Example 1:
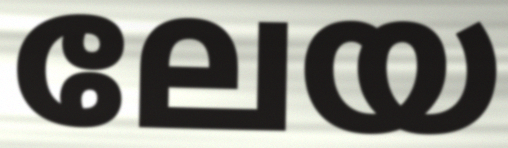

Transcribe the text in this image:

ലേയ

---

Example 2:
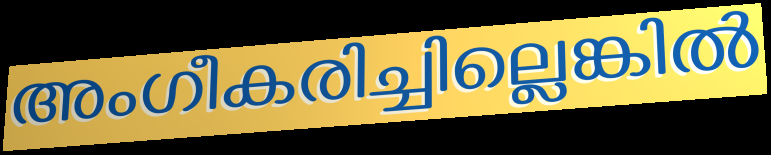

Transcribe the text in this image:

അംഗീകരിച്ചില്ലെങ്കിൽ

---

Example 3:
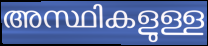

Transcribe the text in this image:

അസ്ഥികളുള്ള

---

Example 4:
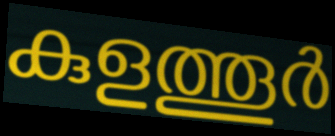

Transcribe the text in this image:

കുളത്തൂർ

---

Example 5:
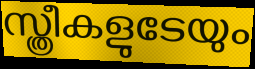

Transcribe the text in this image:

സ്ത്രീകളുടേയും